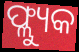
ଫ୍ଲ୍ୟୁକ